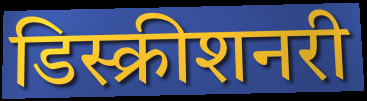
डिस्क्रीशनरी